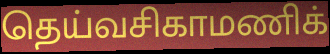
தெய்வசிகாமணிக்